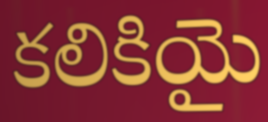
కలికియై